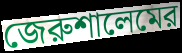
জেরুশালেমের